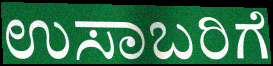
ಉಸಾಬರಿಗೆ